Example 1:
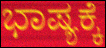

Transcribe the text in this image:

ಭಾಷ್ಯಕ್ಕೆ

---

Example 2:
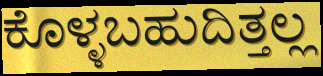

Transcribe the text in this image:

ಕೊಳ್ಳಬಹುದಿತ್ತಲ್ಲ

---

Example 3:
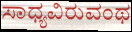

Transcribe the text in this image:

ಸಾಧ್ಯವಿರುವಂಥ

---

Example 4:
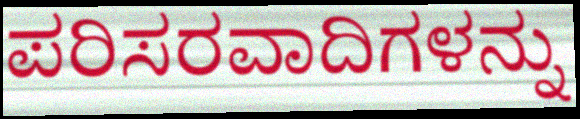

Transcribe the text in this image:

ಪರಿಸರವಾದಿಗಳನ್ನು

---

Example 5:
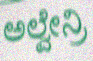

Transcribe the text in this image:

ಅಲ್ವೇನ್ರಿ